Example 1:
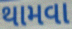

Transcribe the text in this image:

થામવા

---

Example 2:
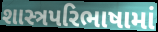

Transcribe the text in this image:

શાસ્ત્રપરિભાષામાં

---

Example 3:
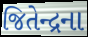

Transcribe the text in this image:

જિતેન્દ્રના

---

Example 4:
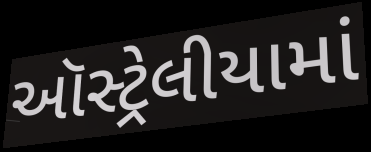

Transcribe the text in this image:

ઑસ્ટ્રેલીયામાં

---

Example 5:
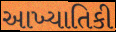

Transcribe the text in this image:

આખ્યાતિકી